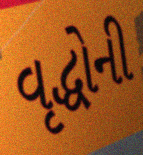
વૃદ્ધોની